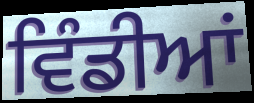
ਵਿੰਡੀਆਂ